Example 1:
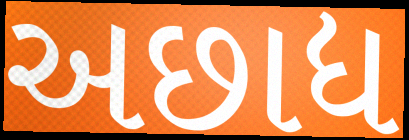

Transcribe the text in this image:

અછાદ્ય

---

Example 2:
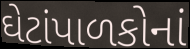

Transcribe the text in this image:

ઘેટાંપાળકોનાં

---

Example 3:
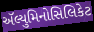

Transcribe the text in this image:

ઍલ્યુમિનોસિલિકેટ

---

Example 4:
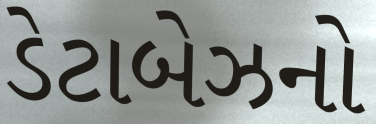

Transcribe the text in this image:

ડેટાબેઝનો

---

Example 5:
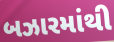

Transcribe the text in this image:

બઝારમાંથી